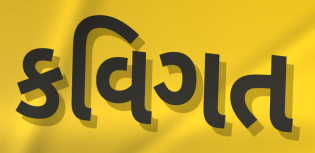
કવિગત